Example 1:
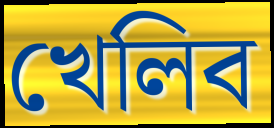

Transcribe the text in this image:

খেলিব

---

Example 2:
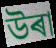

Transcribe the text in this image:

উৰা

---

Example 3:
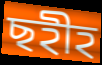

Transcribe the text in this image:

ছহীহ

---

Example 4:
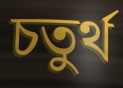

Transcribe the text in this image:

চতুৰ্থ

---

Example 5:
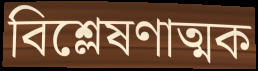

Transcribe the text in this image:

বিশ্লেষণাত্মক